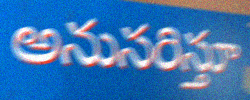
అనుసరిస్తూ